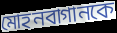
মোহনবাগানকে